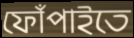
ফোঁপাইতে